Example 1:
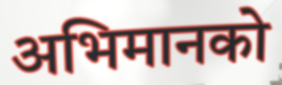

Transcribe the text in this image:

अभिमानको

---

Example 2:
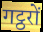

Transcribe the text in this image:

गट्ठरों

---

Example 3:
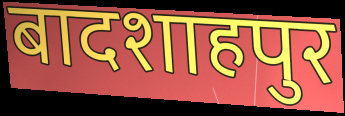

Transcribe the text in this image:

बादशाहपुर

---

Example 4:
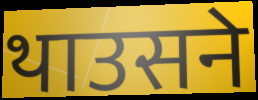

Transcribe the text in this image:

थाउसने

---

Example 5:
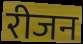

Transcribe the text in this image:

रीजन